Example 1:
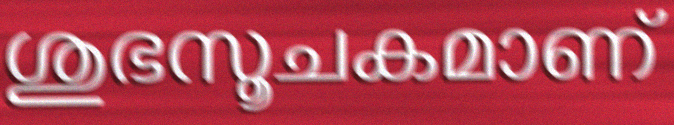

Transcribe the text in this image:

ശുഭസൂചകമാണ്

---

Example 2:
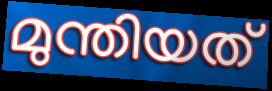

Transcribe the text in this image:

മുന്തിയത്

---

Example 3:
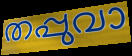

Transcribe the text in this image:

തപ്പുവാ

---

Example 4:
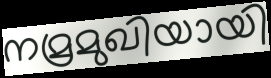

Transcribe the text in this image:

നമ്രമുഖിയായി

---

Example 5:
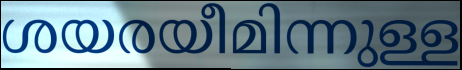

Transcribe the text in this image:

ശയരയീമിന്നുള്ള